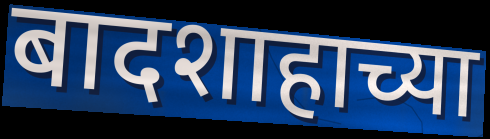
बादशाहाच्या